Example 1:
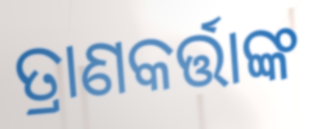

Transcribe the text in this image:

ତ୍ରାଣକର୍ତ୍ତାଙ୍କ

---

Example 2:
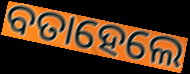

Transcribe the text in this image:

ବତାହେଲେ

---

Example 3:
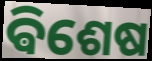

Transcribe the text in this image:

ଵିଶେଷ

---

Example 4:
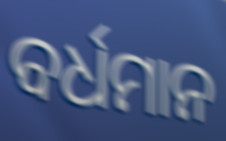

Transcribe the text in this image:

ବର୍ଧମାନ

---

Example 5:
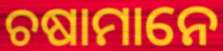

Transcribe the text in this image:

ଚଷାମାନେ